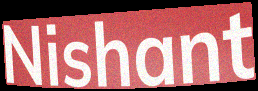
Nishant